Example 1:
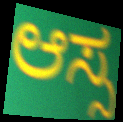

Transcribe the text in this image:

ಆಸ್ಸ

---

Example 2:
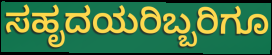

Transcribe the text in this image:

ಸಹೃದಯರಿಬ್ಬರಿಗೂ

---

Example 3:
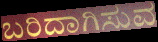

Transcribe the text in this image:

ಬರಿದಾಗಿಸುವ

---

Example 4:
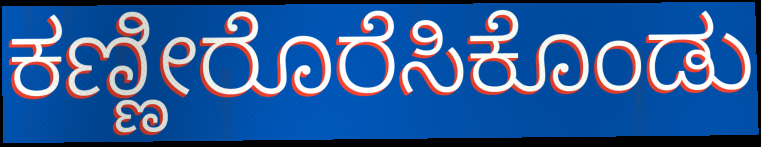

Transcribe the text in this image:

ಕಣ್ಣೀರೊರೆಸಿಕೊಂಡು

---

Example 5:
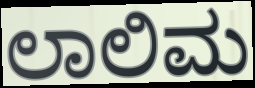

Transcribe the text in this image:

ಲಾಲಿಮ